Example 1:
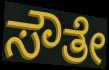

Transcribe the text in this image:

ಸೌತೇ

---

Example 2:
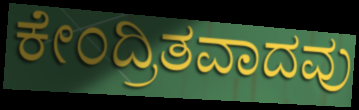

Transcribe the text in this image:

ಕೇಂದ್ರಿತವಾದವು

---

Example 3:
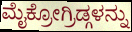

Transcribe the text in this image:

ಮೈಕ್ರೋಗ್ರಿಡ್ಗಳನ್ನು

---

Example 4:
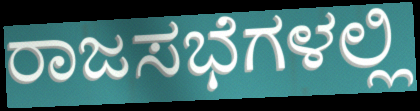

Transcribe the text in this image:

ರಾಜಸಭೆಗಳಲ್ಲಿ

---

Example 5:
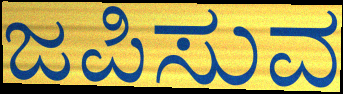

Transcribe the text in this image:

ಜಪಿಸುವ